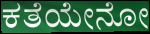
ಕತೆಯೇನೋ